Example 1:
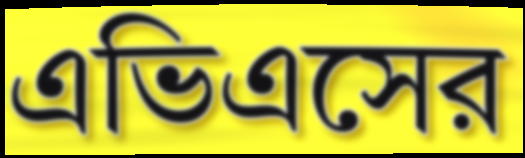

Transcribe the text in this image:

এভিএসের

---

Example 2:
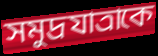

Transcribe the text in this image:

সমুদ্রযাত্রাকে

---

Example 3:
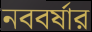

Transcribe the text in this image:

নববর্ষার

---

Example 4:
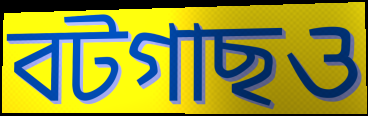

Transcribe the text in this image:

বটগাছও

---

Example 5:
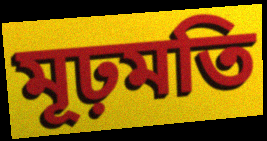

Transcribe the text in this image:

মূঢ়মতি